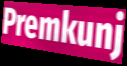
Premkunj